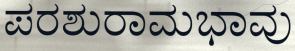
ಪರಶುರಾಮಭಾವು